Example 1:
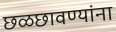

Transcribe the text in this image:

छळछावण्यांना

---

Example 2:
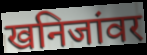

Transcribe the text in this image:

खनिजांवर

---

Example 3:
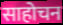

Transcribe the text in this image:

साहोचन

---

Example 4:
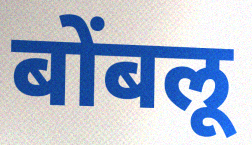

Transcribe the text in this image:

बोंबलू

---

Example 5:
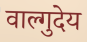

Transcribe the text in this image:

वाल्गुदेय